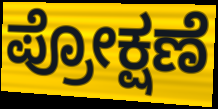
ಪ್ರೋಕ್ಷಣೆ